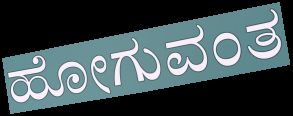
ಹೋಗುವಂತ